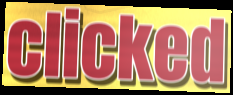
clicked